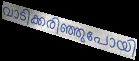
വാടിക്കരിഞ്ഞുപോയി